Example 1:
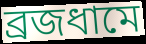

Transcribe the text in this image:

ব্রজধামে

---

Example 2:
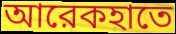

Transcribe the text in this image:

আরেকহাতে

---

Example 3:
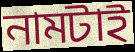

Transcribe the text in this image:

নামটাই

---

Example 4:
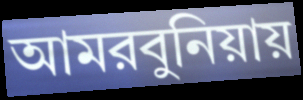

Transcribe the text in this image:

আমরবুনিয়ায়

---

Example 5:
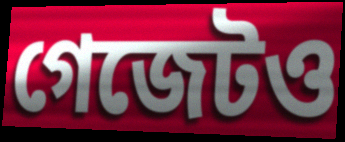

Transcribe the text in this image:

গেজেটও